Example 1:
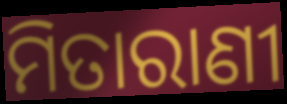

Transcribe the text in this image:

ମିତାରାଣୀ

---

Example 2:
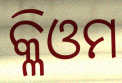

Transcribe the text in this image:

କ୍ଳିଓମ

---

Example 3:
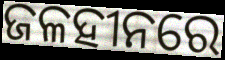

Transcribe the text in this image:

ଜଳହୀନରେ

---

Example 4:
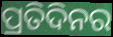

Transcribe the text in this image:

ପ୍ରତିଦିନର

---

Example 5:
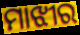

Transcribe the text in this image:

ମାଝୀର